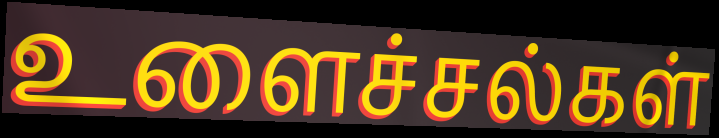
உளைச்சல்கள்